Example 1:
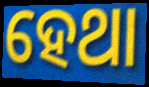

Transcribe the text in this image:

ହେଥା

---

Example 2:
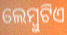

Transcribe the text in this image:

ଲେମ୍ବୁଟିଏ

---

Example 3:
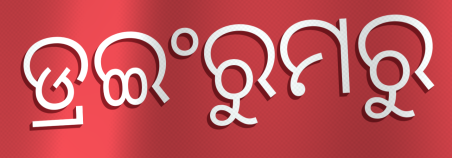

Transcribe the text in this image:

ଡ୍ରଇଂରୁମରୁ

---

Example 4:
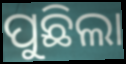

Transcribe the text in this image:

ପୁଛିଲା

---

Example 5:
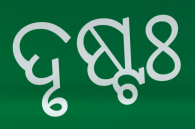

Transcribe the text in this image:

ଦୃଷ୍ଟଃ